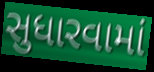
સુધારવામાં